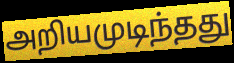
அறியமுடிந்தது